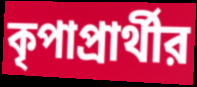
কৃপাপ্রার্থীর